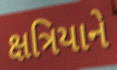
ક્ષત્રિયાને